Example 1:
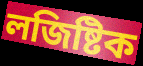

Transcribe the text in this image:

লজিষ্টিক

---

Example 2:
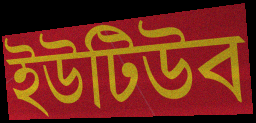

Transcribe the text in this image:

ইউটিউব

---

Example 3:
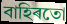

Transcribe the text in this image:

বাহিৰতো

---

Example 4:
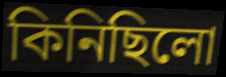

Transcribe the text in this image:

কিনিছিলো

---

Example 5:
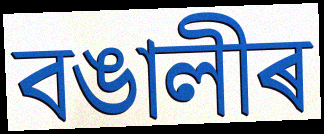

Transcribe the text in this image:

বঙালীৰ